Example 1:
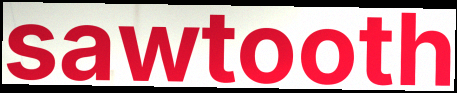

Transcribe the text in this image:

sawtooth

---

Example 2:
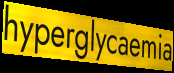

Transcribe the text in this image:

hyperglycaemia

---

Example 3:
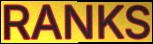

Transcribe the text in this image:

RANKS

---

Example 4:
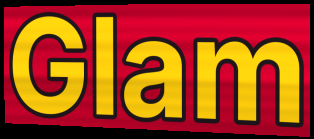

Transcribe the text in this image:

Glam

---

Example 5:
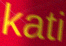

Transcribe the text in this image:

kati